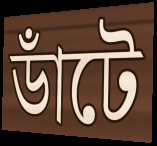
ডাঁটে